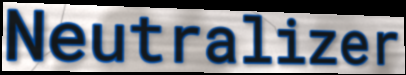
Neutralizer